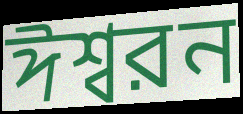
ঈশ্বরন